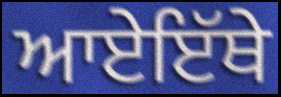
ਆਏਇੱਥੇ